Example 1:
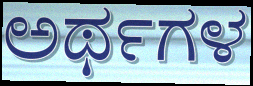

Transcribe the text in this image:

ಅರ್ಥಗಳ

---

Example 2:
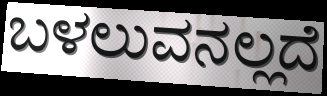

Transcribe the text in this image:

ಬಳಲುವನಲ್ಲದೆ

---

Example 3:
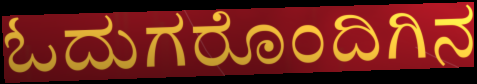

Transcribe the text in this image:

ಓದುಗರೊಂದಿಗಿನ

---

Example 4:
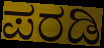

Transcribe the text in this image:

ಪರಡಿ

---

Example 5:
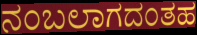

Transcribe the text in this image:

ನಂಬಲಾಗದಂತಹ